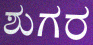
ಶುಗರ